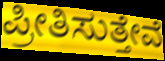
ಪ್ರೀತಿಸುತ್ತೇವೆ